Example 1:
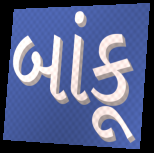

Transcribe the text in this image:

બાંકૂ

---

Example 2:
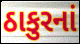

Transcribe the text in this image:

ઠાકુરનાં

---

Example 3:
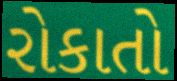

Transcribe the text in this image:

રોકાતો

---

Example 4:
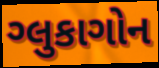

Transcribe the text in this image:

ગ્લુકાગોન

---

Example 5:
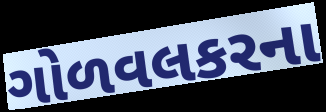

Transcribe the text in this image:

ગોળવલકરના